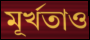
মূর্খতাও